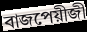
বাজপেয়ীজী